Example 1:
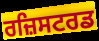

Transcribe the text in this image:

ਰਜ਼ਿਸਟਰਡ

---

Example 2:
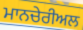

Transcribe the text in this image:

ਮਾਨਚੇਰੀਅਲ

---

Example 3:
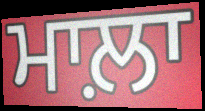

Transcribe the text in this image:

ਮਾਲ਼ਾ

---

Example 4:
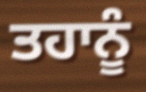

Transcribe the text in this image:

ਤਹਾਨੂੰ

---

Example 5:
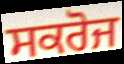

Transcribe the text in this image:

ਸਕਰੋਜ